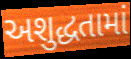
અશુદ્ધતામાં